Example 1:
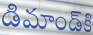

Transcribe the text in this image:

డిమాండ్‌కి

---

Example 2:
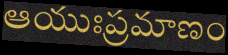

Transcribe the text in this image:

ఆయుఃప్రమాణం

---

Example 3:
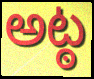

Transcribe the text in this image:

అట్ఠ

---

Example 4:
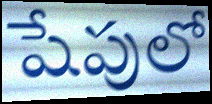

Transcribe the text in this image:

షేపులో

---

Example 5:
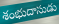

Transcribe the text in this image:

శంభుదాసుడు